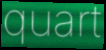
quart